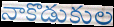
నాకొడుకుల